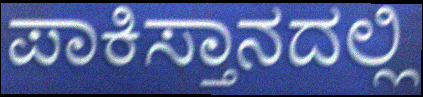
ಪಾಕಿಸ್ತಾನದಲ್ಲಿ